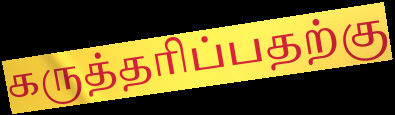
கருத்தரிப்பதற்கு